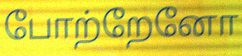
போற்றேனோ